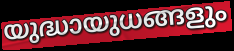
യുദ്ധായുധങ്ങളും